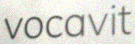
vocavit